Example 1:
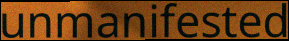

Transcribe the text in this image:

unmanifested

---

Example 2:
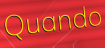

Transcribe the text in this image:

Quando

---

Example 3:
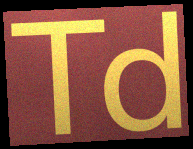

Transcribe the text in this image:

Td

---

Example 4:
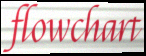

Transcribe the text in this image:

flowchart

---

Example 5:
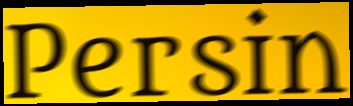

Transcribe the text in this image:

Persin